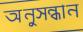
অনুসন্ধান